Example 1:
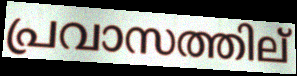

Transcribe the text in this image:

പ്രവാസത്തില്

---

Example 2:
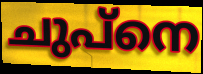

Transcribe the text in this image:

ചുപ്നെ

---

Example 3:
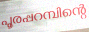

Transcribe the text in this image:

പൂരപ്പറമ്പിന്റെ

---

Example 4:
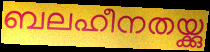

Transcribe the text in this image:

ബലഹീനതയ്ക്കു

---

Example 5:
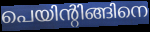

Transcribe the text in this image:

പെയിന്റിങ്ങിനെ